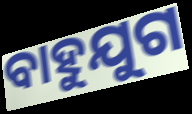
ବାହୁଯୁଗ